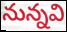
నున్నవి